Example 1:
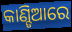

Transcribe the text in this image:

କାଣ୍ଡିଆରେ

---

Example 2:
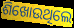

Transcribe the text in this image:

ଶିଖୋଉଥିଲେ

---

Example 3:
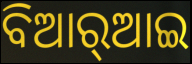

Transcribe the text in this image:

ବିଆର୍‌ଆଇ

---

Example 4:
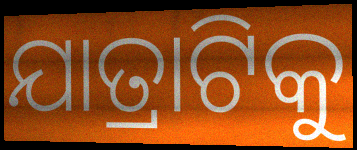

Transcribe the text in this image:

ଯାତ୍ରାଟିକୁ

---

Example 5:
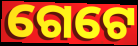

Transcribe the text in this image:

ଗେଟେ